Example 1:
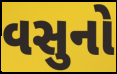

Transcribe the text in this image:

વસુનો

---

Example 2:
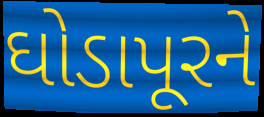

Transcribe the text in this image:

ઘોડાપૂરને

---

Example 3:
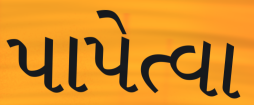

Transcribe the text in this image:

પાપેત્વા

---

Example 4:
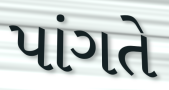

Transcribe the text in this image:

પાંગતે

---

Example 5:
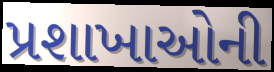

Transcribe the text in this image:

પ્રશાખાઓની